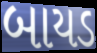
બાયડ